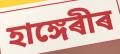
হাঙ্গেৰীৰ